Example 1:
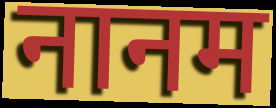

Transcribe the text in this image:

नानम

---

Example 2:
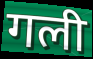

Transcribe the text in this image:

गली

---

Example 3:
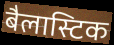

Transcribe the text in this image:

बैलास्टिक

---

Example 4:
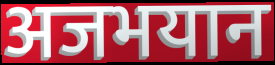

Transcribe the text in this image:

अजभयान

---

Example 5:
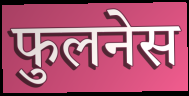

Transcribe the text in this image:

फुलनेस